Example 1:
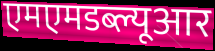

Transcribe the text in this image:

एमएमडब्ल्यूआर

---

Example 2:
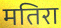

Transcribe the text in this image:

मतिरा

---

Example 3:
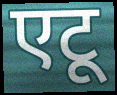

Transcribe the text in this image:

एटू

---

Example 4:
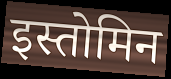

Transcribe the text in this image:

इस्तोमिन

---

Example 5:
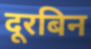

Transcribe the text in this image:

दूरबिन